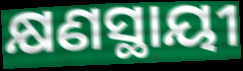
କ୍ଷଣସ୍ଥାୟୀ